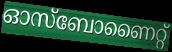
ഓസ്ബോണൈറ്റ്